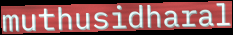
muthusidharal